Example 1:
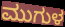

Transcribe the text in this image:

ಮುಗುಳ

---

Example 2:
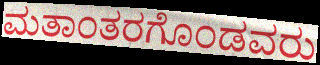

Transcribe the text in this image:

ಮತಾಂತರಗೊಂಡವರು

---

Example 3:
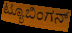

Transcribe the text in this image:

ಟ್ಯೂಬಿಂಗನ್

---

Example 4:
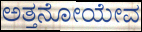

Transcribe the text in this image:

ಅತ್ತನೋಯೇವ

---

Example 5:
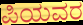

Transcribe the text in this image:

ಪಿಯವರ